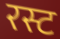
रस्ट